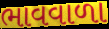
ભાવવાળા